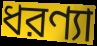
ধরণ্যা